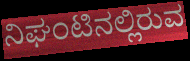
ನಿಘಂಟಿನಲ್ಲಿರುವ